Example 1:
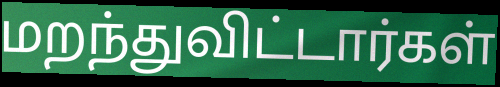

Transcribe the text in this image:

மறந்துவிட்டார்கள்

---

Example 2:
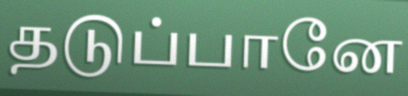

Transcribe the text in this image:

தடுப்பானே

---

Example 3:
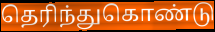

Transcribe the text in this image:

தெரிந்துகொண்டு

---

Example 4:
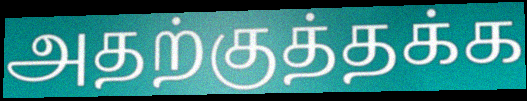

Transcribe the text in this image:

அதற்குத்தக்க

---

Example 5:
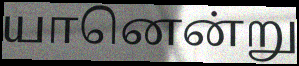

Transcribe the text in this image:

யானென்று